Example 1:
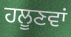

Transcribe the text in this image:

ਹਲੂਣਵਾਂ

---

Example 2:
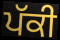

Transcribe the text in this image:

ਪੱਕੀ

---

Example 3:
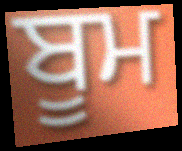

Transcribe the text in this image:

ਬੂਮ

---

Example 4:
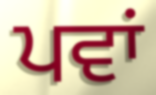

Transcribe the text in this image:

ਪਵਾਂ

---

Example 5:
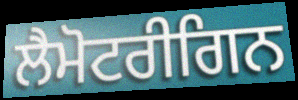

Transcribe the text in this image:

ਲੈਮੋਟਰੀਗਿਨ